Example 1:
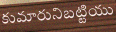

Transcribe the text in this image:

కుమారునిబట్టియు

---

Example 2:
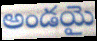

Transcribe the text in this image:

అండయై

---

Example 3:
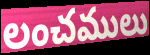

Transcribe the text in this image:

లంచములు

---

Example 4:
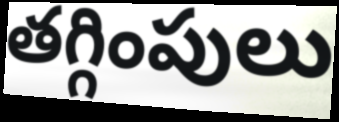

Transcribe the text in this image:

తగ్గింపులు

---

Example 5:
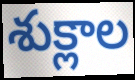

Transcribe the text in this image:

శుక్లాల